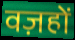
वज़हों